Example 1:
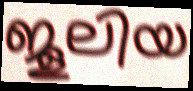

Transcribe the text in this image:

ജൂലിയ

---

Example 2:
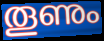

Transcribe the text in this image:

തൂണും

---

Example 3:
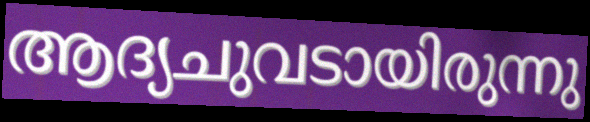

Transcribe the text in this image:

ആദ്യചുവടായിരുന്നു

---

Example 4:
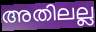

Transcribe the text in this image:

അതിലല്ല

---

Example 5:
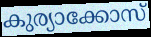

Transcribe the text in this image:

കുര്യാക്കോസ്